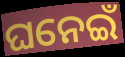
ଘନେଇଁ